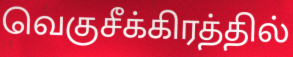
வெகுசீக்கிரத்தில்